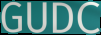
GUDC